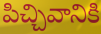
పిచ్చివానికి